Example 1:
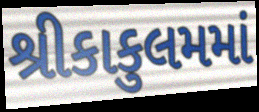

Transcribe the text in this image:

શ્રીકાકુલમમાં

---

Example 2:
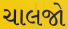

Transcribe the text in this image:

ચાલજો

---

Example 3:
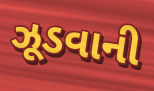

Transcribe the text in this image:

ઝૂડવાની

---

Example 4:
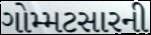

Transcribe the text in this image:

ગોમ્મટસારની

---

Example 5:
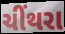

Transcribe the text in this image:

ચીંથરા